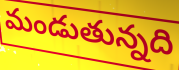
మండుతున్నది